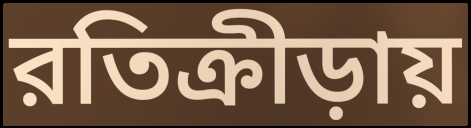
রতিক্রীড়ায়